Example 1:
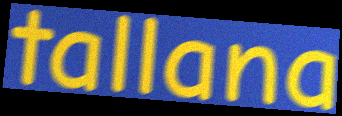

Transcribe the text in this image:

tallana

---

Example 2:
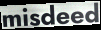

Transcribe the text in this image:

misdeed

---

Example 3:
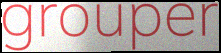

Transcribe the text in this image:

grouper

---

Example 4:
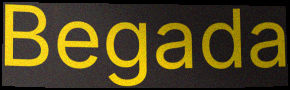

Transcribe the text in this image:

Begada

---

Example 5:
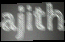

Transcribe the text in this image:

ajith